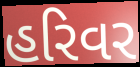
હરિવર